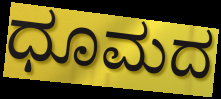
ಧೂಮದ